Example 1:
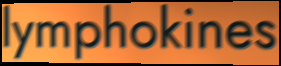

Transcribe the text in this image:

lymphokines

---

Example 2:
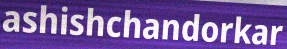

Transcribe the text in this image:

ashishchandorkar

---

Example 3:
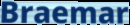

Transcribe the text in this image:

Braemar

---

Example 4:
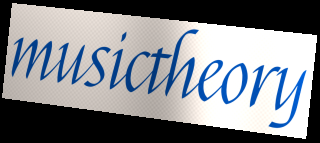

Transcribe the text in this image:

musictheory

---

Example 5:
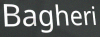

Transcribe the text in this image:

Bagheri